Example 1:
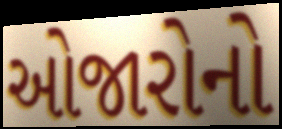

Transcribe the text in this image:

ઓજારોનો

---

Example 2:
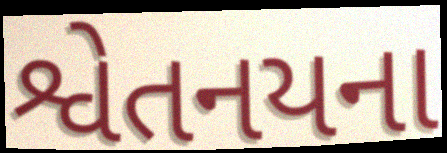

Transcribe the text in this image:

શ્વેતનયના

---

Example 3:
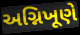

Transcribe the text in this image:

અગ્નિખૂણે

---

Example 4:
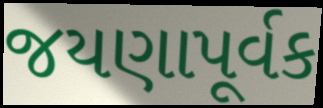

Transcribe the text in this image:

જયણાપૂર્વક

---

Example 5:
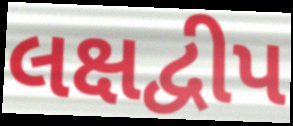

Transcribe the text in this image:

લક્ષદ્વીપ